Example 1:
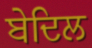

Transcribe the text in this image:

ਬੇਦਿਲ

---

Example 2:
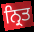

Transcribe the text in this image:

ਨ੍ਰਿਤ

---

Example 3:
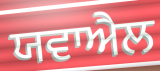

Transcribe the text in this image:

ਯਵਾਐਲ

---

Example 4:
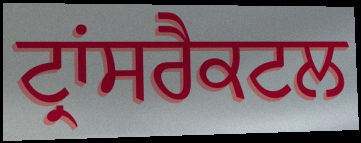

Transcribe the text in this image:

ਟ੍ਰਾਂਸਰੈਕਟਲ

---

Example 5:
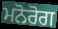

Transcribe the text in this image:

ਮਨੋਰੋਗ